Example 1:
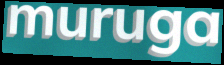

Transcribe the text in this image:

muruga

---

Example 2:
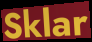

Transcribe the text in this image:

Sklar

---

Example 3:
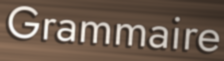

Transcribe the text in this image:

Grammaire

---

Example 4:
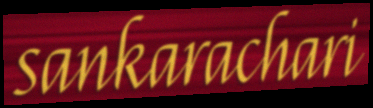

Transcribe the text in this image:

sankarachari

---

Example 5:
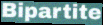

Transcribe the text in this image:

Bipartite